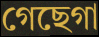
গেছেগা